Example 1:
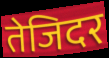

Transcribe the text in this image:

तेजिदर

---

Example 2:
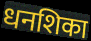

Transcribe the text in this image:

धनशिका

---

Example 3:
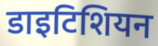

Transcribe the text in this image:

डाइटिशियन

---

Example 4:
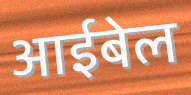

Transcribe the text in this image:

आईबेल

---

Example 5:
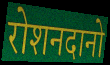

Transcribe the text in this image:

रोशनदानो